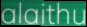
alaithu